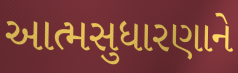
આત્મસુધારણાને